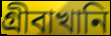
গ্রীবাখানি